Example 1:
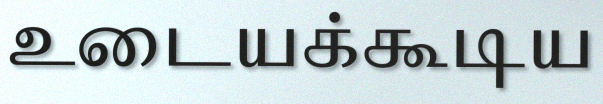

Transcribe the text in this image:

உடையக்கூடிய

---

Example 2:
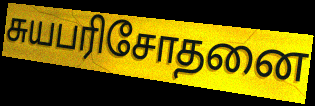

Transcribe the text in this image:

சுயபரிசோதனை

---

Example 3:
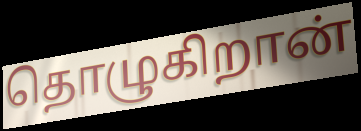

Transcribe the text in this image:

தொழுகிறான்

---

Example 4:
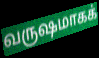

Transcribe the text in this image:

வருஷமாகக்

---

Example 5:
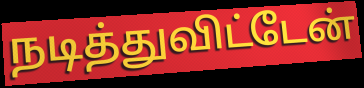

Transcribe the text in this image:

நடித்துவிட்டேன்